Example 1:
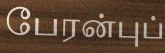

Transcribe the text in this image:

பேரன்புப்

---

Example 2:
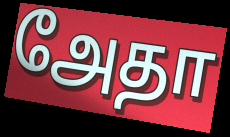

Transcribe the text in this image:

அேதா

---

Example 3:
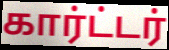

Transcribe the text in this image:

கார்ட்டர்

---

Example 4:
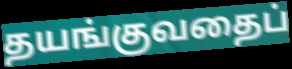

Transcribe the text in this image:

தயங்குவதைப்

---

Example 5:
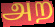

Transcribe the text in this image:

அற